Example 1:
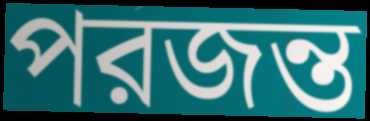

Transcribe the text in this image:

পরজন্ত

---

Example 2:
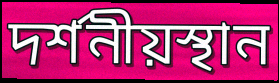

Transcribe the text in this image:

দর্শনীয়স্থান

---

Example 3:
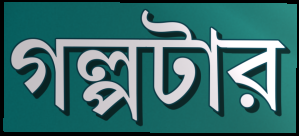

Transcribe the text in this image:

গল্পটার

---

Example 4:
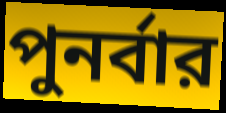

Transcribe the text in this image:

পুনর্বার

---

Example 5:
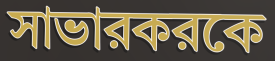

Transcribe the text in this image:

সাভারকরকে